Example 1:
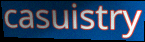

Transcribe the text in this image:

casuistry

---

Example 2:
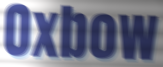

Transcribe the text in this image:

Oxbow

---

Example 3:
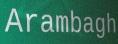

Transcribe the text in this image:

Arambagh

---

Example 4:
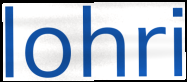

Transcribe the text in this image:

lohri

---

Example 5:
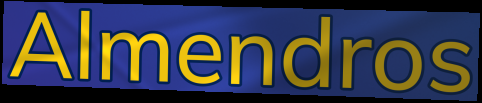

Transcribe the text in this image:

Almendros